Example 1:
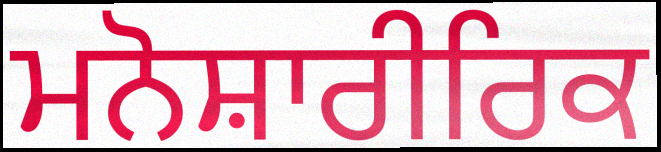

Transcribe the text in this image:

ਮਨੋਸ਼ਾਰੀਰਿਕ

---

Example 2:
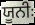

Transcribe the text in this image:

ਯੂਨੀਃ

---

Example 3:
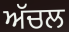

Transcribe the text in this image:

ਅੱਚਲ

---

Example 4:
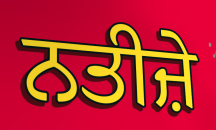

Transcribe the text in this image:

ਨਤੀਜ਼ੇ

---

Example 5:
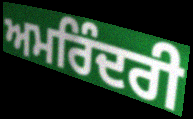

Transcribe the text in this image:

ਅਮਰਿੰਦਰੀ